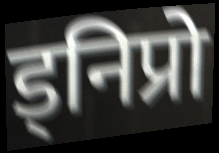
ड्निप्रो